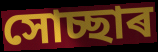
সোচ্ছাৰ